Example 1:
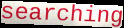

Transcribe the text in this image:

searching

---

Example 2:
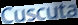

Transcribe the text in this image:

Cuscuta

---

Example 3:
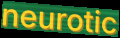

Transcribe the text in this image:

neurotic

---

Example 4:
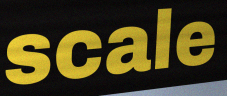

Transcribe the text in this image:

scale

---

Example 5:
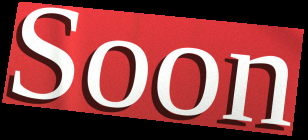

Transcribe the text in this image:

Soon